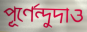
পূর্ণেন্দুদাও